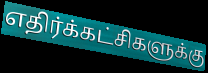
எதிர்க்கட்சிகளுக்கு